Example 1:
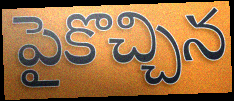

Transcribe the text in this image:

పైకొచ్చిన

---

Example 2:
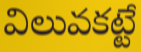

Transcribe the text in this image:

విలువకట్టే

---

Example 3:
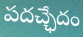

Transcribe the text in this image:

పదచ్ఛేదం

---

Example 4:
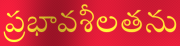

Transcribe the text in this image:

ప్రభావశీలతను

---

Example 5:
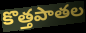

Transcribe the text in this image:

కొత్తపాతల